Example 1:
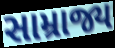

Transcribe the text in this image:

સામ્રાજ્ય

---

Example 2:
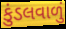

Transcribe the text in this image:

કુંડલવાળું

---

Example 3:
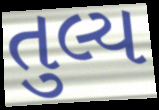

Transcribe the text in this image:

તુલ્ય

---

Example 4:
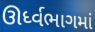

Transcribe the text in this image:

ઊર્ધ્વભાગમાં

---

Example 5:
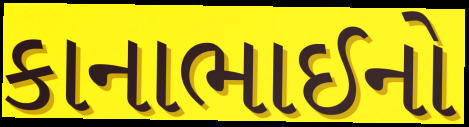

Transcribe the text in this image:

કાનાભાઈનો